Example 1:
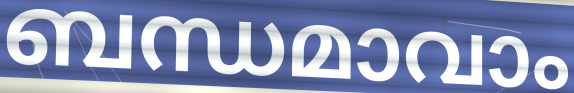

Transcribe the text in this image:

ബന്ധമാവാം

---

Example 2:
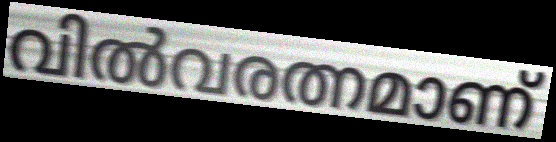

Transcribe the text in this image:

വിൽവരത്നമാണ്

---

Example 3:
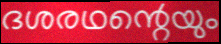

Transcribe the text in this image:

ദശരഥന്റെയും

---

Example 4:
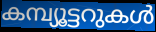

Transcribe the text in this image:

കമ്പ്യൂട്ടറുകൾ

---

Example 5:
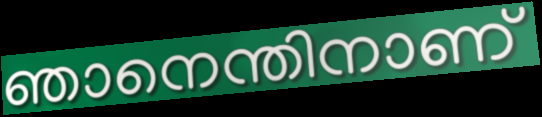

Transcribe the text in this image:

ഞാനെന്തിനാണ്